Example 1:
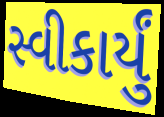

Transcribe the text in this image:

સ્વીકાર્યું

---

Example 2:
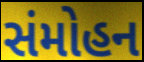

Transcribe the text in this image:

સંમોહન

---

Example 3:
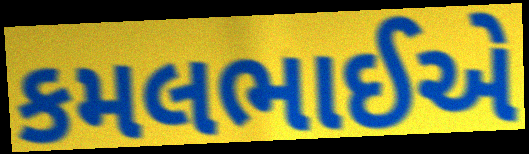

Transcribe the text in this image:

કમલભાઈએ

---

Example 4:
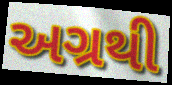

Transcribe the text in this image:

અગ્રથી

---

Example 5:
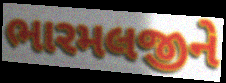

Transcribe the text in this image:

ભારમલજીને